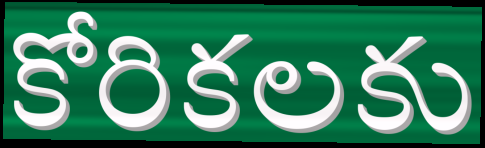
కోరికలకు